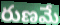
రుణమే